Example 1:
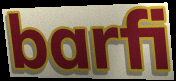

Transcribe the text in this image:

barfi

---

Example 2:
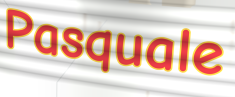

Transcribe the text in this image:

Pasquale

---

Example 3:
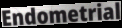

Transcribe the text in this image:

Endometrial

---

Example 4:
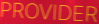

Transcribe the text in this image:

PROVIDER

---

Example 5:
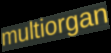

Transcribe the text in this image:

multiorgan